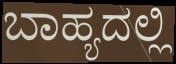
ಬಾಹ್ಯದಲ್ಲಿ